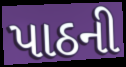
પાઠની